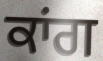
ਕਾਂਗ